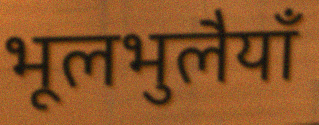
भूलभुलैयाँ